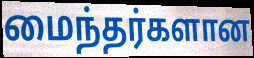
மைந்தர்களான